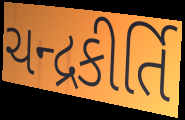
ચન્દ્રકીર્તિ